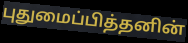
புதுமைப்பித்தனின்